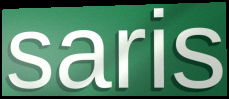
saris